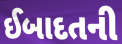
ઈબાદતની